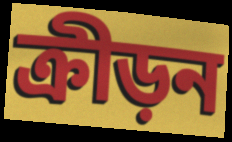
ক্রীড়ন